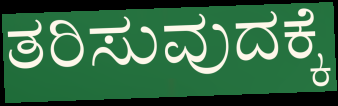
ತರಿಸುವುದಕ್ಕೆ